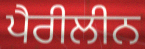
ਪੈਰੀਲੀਨ